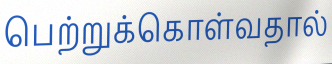
பெற்றுக்கொள்வதால்